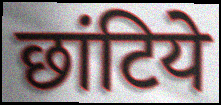
छांटिये